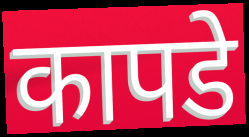
कापडे